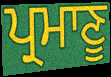
ਪ੍ਰਮਾਣੂ